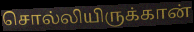
சொல்லியிருக்கான்